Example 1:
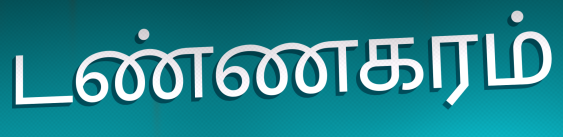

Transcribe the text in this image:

டண்ணகரம்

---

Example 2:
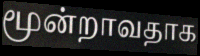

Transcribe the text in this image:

மூன்றாவதாக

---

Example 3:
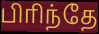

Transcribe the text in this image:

பிரிந்தே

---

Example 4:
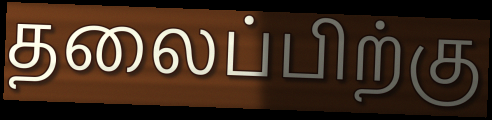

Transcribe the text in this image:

தலைப்பிற்கு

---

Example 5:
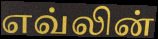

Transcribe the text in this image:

எவ்லின்